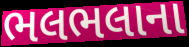
ભલભલાના